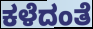
ಕಳೆದಂತೆ